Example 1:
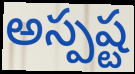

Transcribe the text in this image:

అస్పష్ట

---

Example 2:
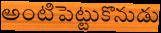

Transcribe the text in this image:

అంటిపెట్టుకొనుడు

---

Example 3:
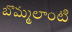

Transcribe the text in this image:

బొమ్మలాంటి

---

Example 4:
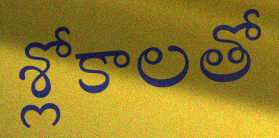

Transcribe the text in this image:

శ్లోకాలతో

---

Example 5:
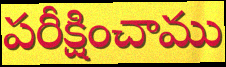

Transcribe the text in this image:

పరీక్షించాము